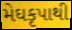
મેઘકૃપાથી